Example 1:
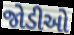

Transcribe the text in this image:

જોડીઓ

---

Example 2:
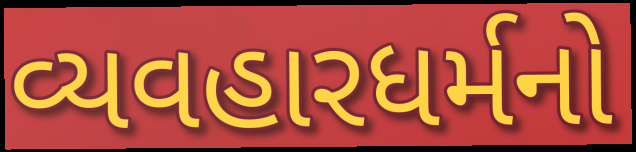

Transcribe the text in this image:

વ્યવહારધર્મનો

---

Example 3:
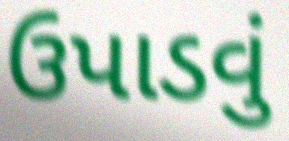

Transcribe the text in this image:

ઉપાડવું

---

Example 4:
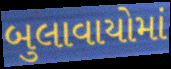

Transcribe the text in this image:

બુલાવાયોમાં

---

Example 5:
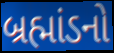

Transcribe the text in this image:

બ્રહ્માંડનો